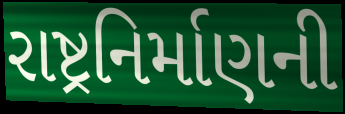
રાષ્ટ્રનિર્માણની